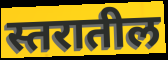
स्तरातील